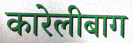
कारेलीबाग